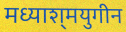
मध्याश्मयुगीन